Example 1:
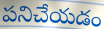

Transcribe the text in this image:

పనిచేయడం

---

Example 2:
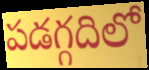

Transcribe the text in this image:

పడగ్గదిలో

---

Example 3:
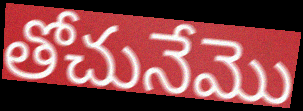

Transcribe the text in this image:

తోచునేమొ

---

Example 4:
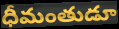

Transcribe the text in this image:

ధీమంతుడూ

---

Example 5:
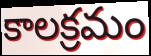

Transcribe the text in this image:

కాలక్రమం